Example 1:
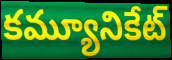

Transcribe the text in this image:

కమ్యూనికేట్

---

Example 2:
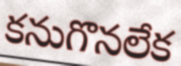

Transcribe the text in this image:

కనుగొనలేక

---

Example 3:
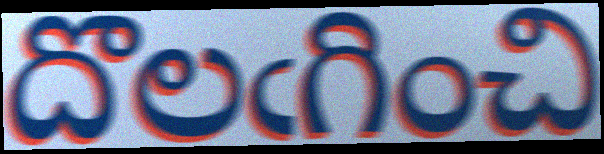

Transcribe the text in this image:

దొలఁగించి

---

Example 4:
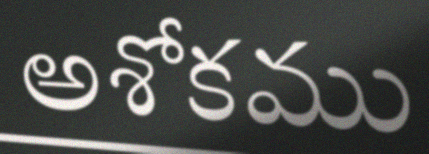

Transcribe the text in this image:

అశోకము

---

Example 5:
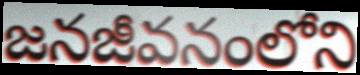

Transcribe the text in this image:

జనజీవనంలోని